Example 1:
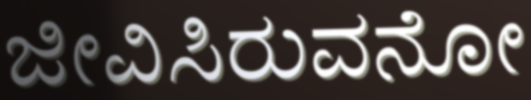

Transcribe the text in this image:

ಜೀವಿಸಿರುವನೋ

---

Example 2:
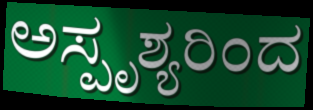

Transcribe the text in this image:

ಅಸ್ಪೃಶ್ಯರಿಂದ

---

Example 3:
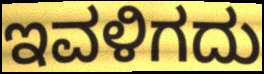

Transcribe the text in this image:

ಇವಳಿಗದು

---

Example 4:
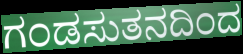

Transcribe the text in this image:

ಗಂಡಸುತನದಿಂದ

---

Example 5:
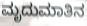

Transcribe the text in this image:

ಮೃದುಮಾತಿನ